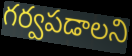
గర్వపడాలని